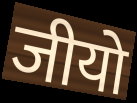
जीयो